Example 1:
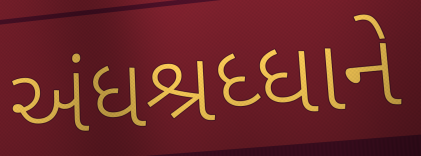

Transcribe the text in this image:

અંધશ્રધ્ધાને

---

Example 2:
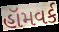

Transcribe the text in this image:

હૉમવર્ક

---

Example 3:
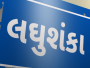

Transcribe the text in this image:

લઘુશંકા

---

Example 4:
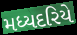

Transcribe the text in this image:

મધ્યદરિયે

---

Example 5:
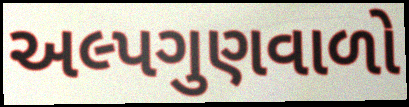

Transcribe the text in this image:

અલ્પગુણવાળો